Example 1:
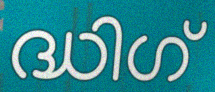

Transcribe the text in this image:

ദ്ധിഗ്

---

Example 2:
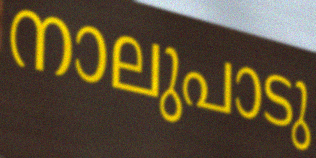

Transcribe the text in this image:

നാലുപാടു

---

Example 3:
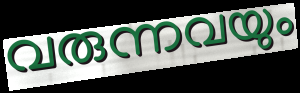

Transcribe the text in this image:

വരുന്നവയും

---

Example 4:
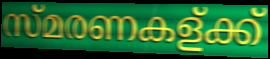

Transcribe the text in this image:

സ്മരണകള്ക്ക്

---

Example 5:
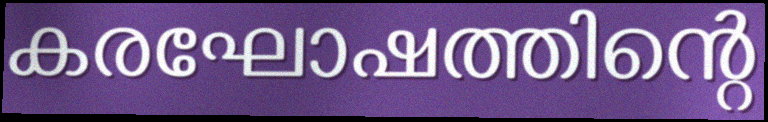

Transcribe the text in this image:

കരഘോഷത്തിന്റെ